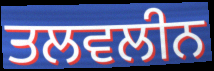
ਤਲਵਲੀਨ